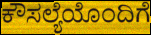
ಕೌಸಲ್ಯೆಯೊಂದಿಗೆ